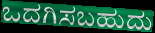
ಒದಗಿಸಬಹುದು